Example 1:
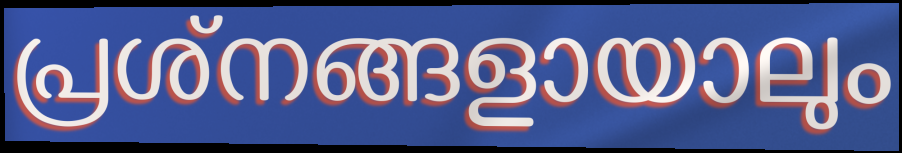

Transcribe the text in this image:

പ്രശ്‌നങ്ങളായാലും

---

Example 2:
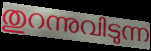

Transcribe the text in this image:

തുറന്നുവിടുന്ന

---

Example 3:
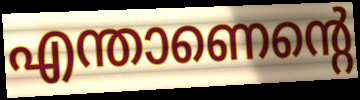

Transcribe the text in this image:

എന്താണെന്റെ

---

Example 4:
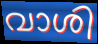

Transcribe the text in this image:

വാശി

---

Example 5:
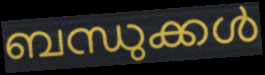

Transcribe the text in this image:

ബന്ധുക്കൾ